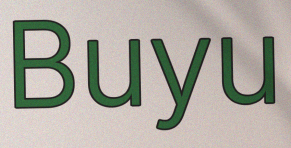
Buyu